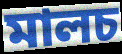
মালচ